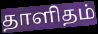
தாளிதம்